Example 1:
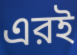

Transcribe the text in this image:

এরই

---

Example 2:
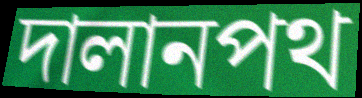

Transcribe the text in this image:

দালানপথ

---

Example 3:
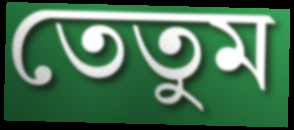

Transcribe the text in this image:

তেতুম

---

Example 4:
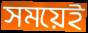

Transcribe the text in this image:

সময়েই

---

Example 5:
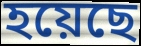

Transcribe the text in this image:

হয়েছে